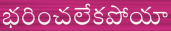
భరించలేకపోయా